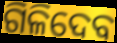
ଗିଳିଦେବ